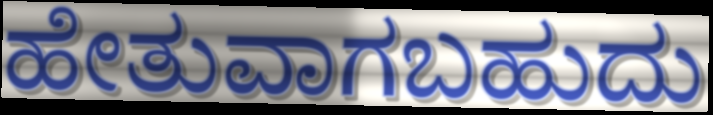
ಹೇತುವಾಗಬಹುದು